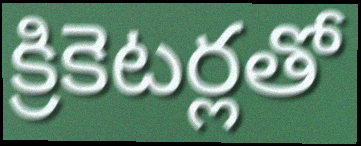
క్రికెటర్లతో